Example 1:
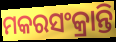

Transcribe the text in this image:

ମକରସଂକ୍ରାନ୍ତି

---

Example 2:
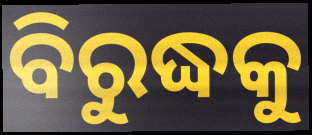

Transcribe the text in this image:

ବିରୁଦ୍ଧକୁ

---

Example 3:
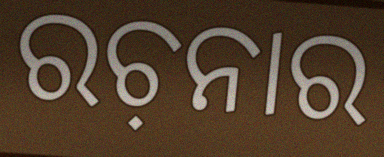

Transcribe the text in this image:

ରଚ଼ନାର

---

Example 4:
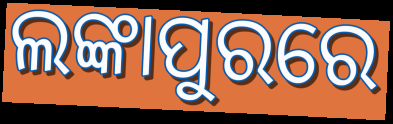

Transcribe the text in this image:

ଲଙ୍କାପୁରରେ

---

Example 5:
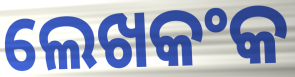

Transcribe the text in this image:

ଲେଖକଂକ